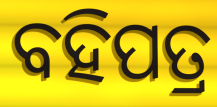
ବହିପତ୍ର